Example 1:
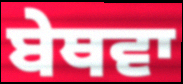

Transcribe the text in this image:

ਬੇਥਵਾ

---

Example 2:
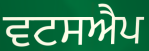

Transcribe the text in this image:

ਵਟਸਐਪ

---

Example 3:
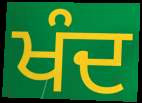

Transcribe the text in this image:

ਖੰਦ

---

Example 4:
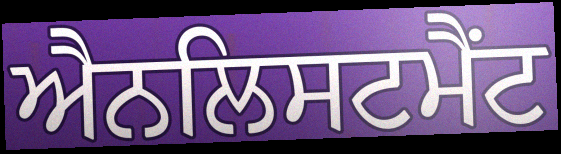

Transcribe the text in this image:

ਐਨਲਿਸਟਮੈਂਟ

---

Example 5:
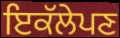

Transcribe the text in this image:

ਇਕੱਲੇਪਣ